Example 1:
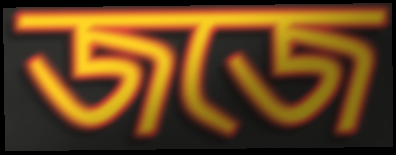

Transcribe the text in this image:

জজে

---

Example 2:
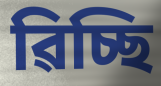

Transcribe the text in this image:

ৱিচ্ছি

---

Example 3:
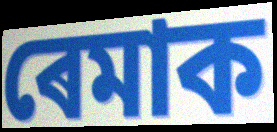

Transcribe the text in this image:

ৰেমাক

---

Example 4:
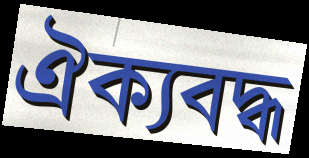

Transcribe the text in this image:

ঐক্যবদ্ধ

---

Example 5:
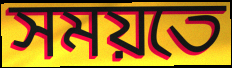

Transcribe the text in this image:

সময়তে